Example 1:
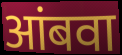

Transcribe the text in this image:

आंबवा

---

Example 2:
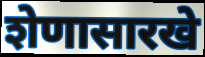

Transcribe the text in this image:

शेणासारखे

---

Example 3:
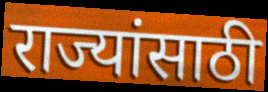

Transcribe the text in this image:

राज्यांसाठी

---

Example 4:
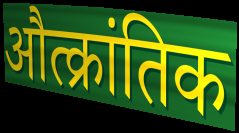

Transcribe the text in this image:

औत्क्रांतिक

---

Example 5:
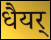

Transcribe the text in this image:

धैयर्